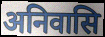
अनिवासि